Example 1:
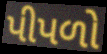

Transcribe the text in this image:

પીપળો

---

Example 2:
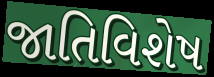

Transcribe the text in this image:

જાતિવિશેષ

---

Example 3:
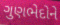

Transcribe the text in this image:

ગુણભેદોને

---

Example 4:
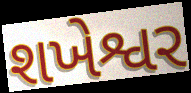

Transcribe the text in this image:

શખેશ્વર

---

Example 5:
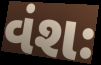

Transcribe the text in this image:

વંશઃ